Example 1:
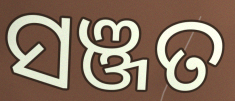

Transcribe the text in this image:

ସଞ୍ଜତ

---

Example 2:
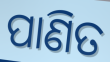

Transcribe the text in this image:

ପାଣିତ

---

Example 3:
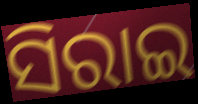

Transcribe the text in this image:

ସିରାଇ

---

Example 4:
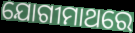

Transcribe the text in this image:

ଯୋଗୀମାଥରେ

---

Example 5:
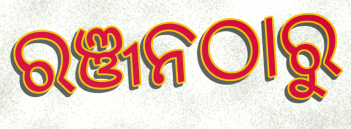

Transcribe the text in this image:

ରଞ୍ଜନଠାରୁ